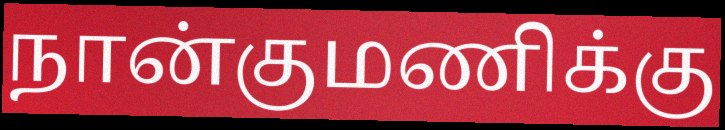
நான்குமணிக்கு